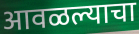
आवळल्याचा